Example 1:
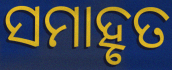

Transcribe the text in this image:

ସମାହୃତ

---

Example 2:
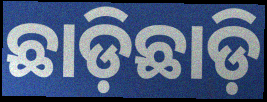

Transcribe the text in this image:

ଛାଡ଼ିଛାଡ଼ି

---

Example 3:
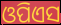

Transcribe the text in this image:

ଓପିଏସ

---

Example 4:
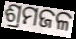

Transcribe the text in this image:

ଶ୍ରମଜଳ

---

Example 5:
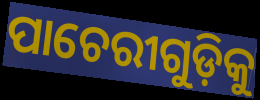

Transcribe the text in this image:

ପାଚେରୀଗୁଡ଼ିକୁ